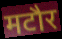
मटौर